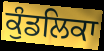
ਕੁੰਡਲਿਕਾ